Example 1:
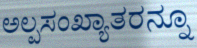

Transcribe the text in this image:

ಅಲ್ಪಸಂಖ್ಯಾತರನ್ನೂ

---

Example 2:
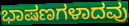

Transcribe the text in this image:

ಭಾಷಣಗಳಾದವು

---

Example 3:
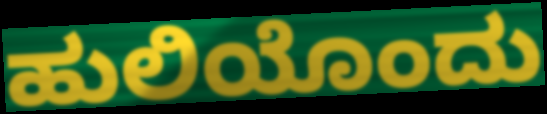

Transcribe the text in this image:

ಹುಲಿಯೊಂದು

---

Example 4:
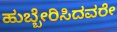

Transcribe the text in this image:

ಹುಬ್ಬೇರಿಸಿದವರೇ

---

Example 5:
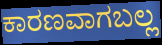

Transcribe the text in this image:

ಕಾರಣವಾಗಬಲ್ಲ